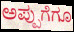
ಅಪ್ಪುಗೆಗೂ